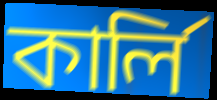
কার্লি